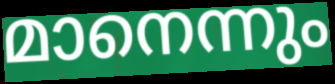
മാനെന്നും